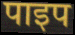
पाइप